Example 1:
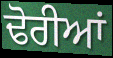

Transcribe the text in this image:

ਢੋਰੀਆਂ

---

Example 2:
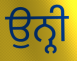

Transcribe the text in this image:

ਉਨ੍ਨੀ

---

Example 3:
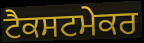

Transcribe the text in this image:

ਟੈਕਸਟਮੇਕਰ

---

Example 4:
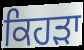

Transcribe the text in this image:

ਕਿਹੜਾ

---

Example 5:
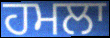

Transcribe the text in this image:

ਹਮਲਾ